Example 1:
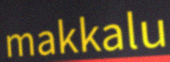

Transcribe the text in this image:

makkalu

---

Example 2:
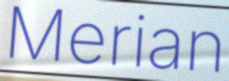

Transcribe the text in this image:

Merian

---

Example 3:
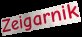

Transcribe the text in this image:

Zeigarnik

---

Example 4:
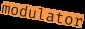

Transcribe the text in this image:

modulator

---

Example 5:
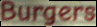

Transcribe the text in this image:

Burgers